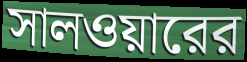
সালওয়ারের